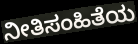
ನೀತಿಸಂಹಿತೆಯ